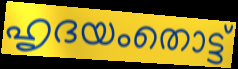
ഹൃദയംതൊട്ട്